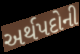
અર્થપદોની